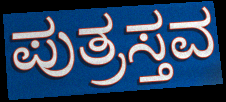
ಪುತ್ರಸ್ತವ